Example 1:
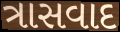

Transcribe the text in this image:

ત્રાસવાદ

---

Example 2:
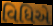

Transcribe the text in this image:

વિધિએ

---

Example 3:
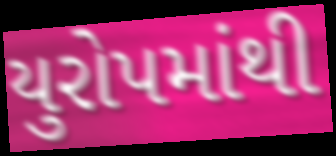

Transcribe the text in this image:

યુરોપમાંથી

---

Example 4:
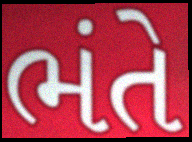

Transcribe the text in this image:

ભંતે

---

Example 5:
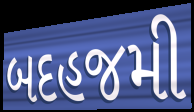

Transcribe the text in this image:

બદહજમી